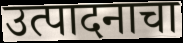
उत्पादनाचा